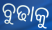
ବୁଢାକୁ